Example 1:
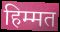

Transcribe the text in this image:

हिम्मत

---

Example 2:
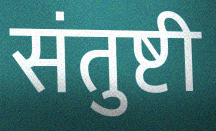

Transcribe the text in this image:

संतुष्टी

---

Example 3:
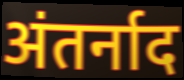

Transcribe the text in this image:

अंतर्नाद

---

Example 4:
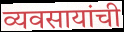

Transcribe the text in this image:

व्यवसायांची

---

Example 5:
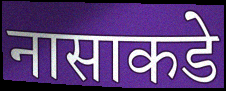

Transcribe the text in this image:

नासाकडे